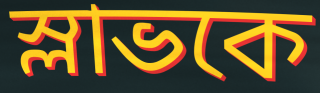
স্লাভকে